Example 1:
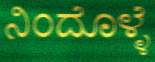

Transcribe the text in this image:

ನಿಂದೊಳ್ಳೆ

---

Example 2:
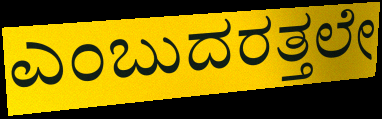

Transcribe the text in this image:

ಎಂಬುದರತ್ತಲೇ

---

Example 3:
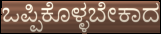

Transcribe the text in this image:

ಒಪ್ಪಿಕೊಳ್ಳಬೇಕಾದ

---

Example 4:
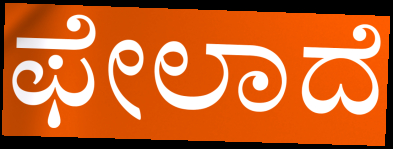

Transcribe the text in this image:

ಫೇಲಾದೆ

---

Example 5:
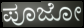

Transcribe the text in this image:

ಪೂಜೋ